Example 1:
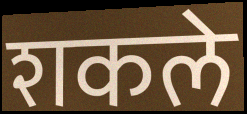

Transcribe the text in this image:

शकले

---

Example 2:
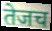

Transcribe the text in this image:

तेजच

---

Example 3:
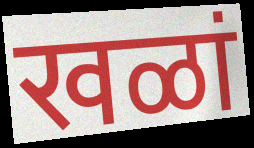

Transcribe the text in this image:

खळां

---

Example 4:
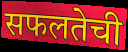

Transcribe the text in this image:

सफलतेची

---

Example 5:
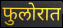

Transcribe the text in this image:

फुलोरात